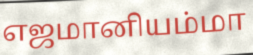
எஜமானியம்மா